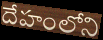
దేహంలోని